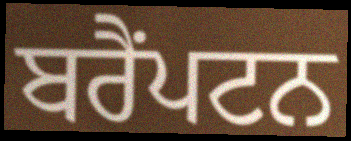
ਬਰੈਂਪਟਨ